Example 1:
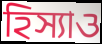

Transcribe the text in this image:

হিস্যাও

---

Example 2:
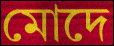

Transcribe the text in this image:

মোদে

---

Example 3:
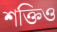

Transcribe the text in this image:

শক্তিও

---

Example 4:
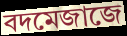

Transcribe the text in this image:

বদমেজাজে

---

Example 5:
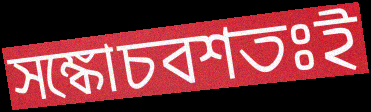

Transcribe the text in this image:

সঙ্কোচবশতঃই